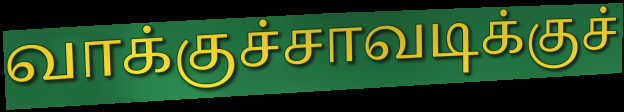
வாக்குச்சாவடிக்குச்